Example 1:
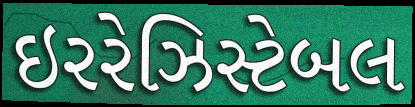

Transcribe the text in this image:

ઇરરેઝિસ્ટેબલ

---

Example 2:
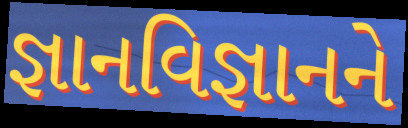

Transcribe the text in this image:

જ્ઞાનવિજ્ઞાનને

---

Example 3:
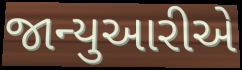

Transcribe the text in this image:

જાન્યુઆરીએ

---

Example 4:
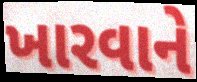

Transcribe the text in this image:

ખારવાને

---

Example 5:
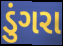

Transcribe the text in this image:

ડુંગરા